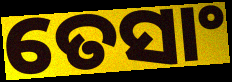
ତେସାଂ